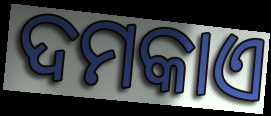
ଦମକାଏ